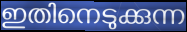
ഇതിനെടുക്കുന്ന